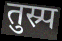
तुस्र्प